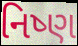
નિષ્ણ